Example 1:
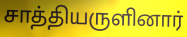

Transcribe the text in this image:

சாத்தியருளினார்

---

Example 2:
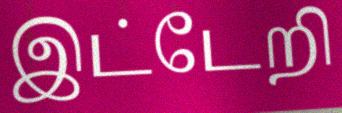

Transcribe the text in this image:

இட்டேறி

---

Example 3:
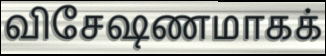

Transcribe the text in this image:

விசேஷணமாகக்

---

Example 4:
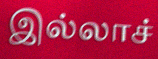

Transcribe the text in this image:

இல்லாச்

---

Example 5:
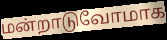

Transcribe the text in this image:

மன்றாடுவோமாக